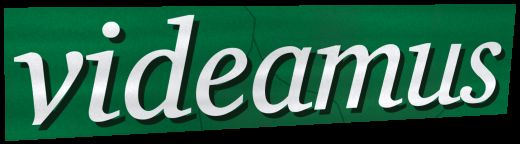
videamus